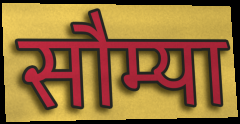
सौम्या